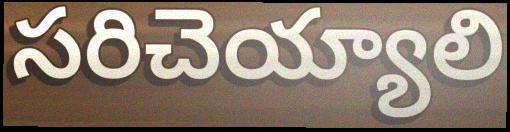
సరిచెయ్యాలి